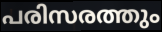
പരിസരത്തും